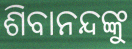
ଶିବାନନ୍ଦଙ୍କୁ